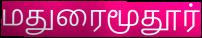
மதுரைமூதூர்